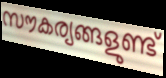
സൗകര്യങ്ങളുണ്ട്